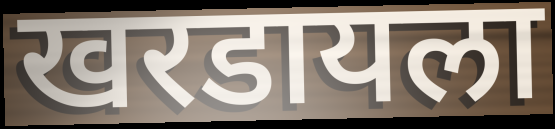
खरडायला